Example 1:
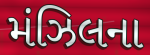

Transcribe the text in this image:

મંઝિલના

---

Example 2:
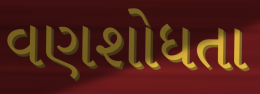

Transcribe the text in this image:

વણશોધતા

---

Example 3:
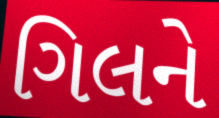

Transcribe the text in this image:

ગિલને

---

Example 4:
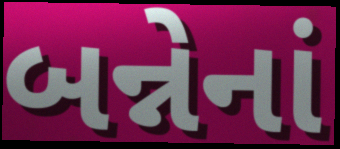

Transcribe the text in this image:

બન્નેનાં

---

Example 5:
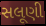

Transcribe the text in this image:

સલૂણી